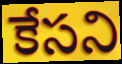
కేసని